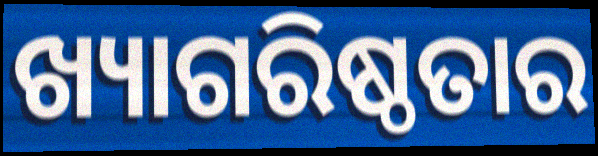
ଖ୍ୟାଗରିଷ୍ଠତାର